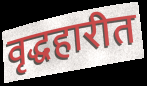
वृद्धहारीत